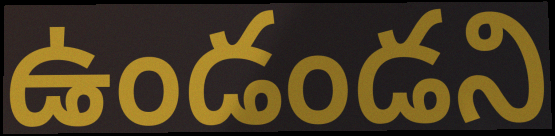
ఉండండని